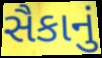
સૈકાનું